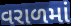
વરાળમાં